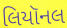
લિયૉનલ